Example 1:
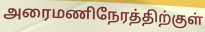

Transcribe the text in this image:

அரைமணிநேரத்திற்குள்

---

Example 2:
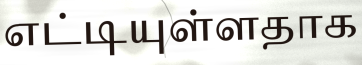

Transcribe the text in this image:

எட்டியுள்ளதாக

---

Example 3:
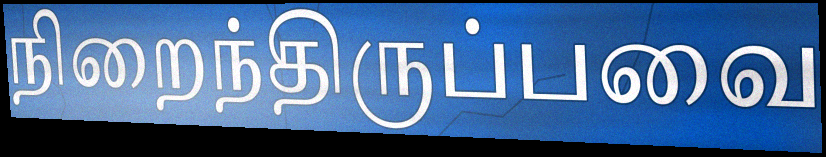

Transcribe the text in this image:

நிறைந்திருப்பவை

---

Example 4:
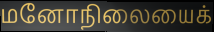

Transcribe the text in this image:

மனோநிலையைக்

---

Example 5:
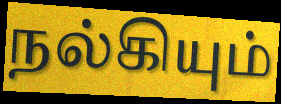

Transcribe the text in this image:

நல்கியும்